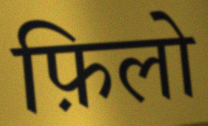
फ़िलो